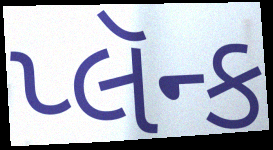
પ્લૅન્ક